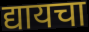
द्यायचा